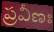
ప్రవీణః